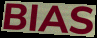
BIAS